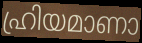
ഹ്രിയമാണാ